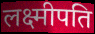
लक्ष्मीपति